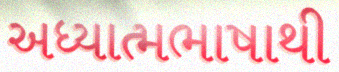
અધ્યાત્મભાષાથી